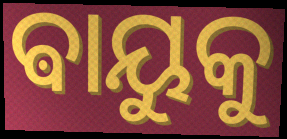
ଵାୟୁକୁ